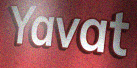
Yavat